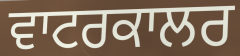
ਵਾਟਰਕਾਲਰ